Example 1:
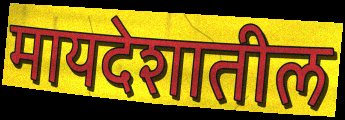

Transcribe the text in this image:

मायदेशातील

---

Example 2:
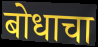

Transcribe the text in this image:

बोधाचा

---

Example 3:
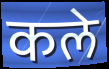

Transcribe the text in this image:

कले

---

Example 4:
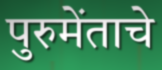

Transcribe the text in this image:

पुरुमेंताचे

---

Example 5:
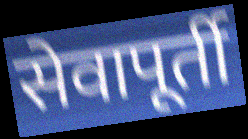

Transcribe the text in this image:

सेवापूर्ती